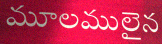
మూలములైన